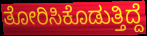
ತೋರಿಸಿಕೊಡುತ್ತಿದ್ದೆ